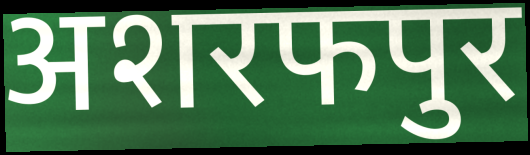
अशरफपुर